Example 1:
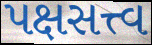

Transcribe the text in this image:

પક્ષસત્ત્વ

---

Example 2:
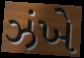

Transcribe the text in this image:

ઝંખે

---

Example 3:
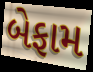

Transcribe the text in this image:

બેફામ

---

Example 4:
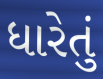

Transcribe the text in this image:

ધારેતું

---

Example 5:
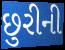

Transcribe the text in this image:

છુરીની